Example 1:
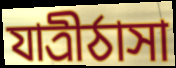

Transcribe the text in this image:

যাত্রীঠাসা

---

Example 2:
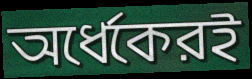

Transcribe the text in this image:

অর্ধেকেরই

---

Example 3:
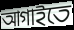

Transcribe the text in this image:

আগাইতে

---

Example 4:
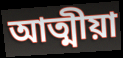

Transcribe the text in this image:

আত্মীয়া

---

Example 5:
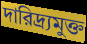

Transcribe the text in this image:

দারিদ্র্যমুক্ত